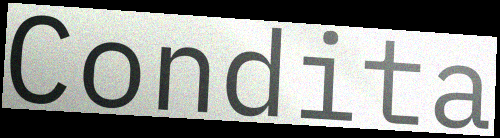
Condita